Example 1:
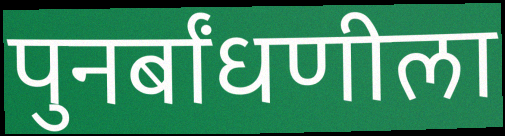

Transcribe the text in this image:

पुनर्बांधणीला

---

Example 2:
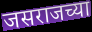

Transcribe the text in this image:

जसराजच्या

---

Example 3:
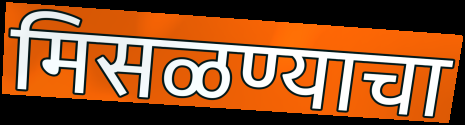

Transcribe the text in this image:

मिसळण्याचा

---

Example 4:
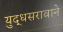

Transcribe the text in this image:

युद्धसरावाने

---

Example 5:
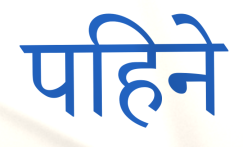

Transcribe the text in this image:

पहिने